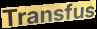
Transfus